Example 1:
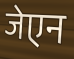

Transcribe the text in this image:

जेएन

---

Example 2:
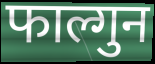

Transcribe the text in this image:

फाल्गुन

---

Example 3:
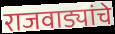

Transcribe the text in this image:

राजवाड्यांचे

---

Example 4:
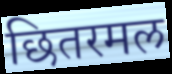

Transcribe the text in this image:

छितरमल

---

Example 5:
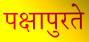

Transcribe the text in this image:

पक्षापुरते